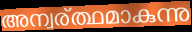
അന്വര്ത്ഥമാകുന്നു